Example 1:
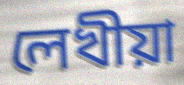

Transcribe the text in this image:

লেখীয়া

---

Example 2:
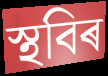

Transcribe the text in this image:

স্থবিৰ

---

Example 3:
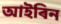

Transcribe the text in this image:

আইৰিন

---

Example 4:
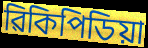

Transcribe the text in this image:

ৱিকিপিডিয়া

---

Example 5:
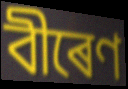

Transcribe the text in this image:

বীৰেণ